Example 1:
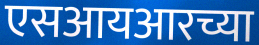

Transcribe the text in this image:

एसआयआरच्या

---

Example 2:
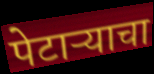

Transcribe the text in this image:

पेटाऱ्याचा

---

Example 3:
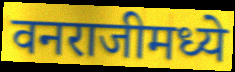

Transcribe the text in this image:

वनराजीमध्ये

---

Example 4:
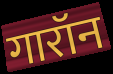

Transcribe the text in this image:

गारॉन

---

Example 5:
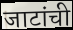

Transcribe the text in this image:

जाटांची